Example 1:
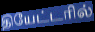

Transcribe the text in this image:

தியேட்டரில்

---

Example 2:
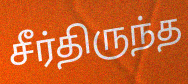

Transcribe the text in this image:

சீர்திருந்த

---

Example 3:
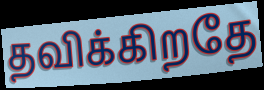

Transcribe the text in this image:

தவிக்கிறதே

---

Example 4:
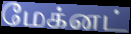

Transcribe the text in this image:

மேக்னட்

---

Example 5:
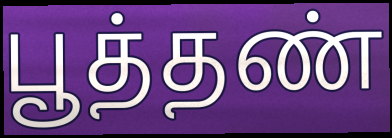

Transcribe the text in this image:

பூத்தண்